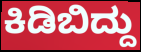
ಕಿಡಿಬಿದ್ದು